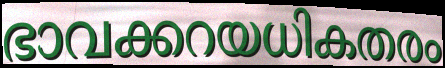
ഭാവക്കറയധികതരം